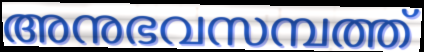
അനുഭവസമ്പത്ത്